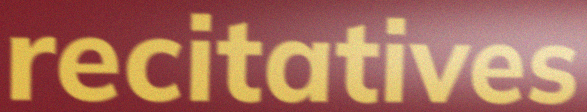
recitatives